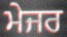
ਮੇਜਰ